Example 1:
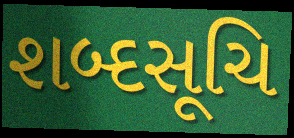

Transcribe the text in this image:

શબ્દસૂચિ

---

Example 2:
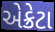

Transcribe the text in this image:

એક્રેટા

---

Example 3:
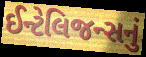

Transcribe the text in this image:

ઈન્ટેલિજન્સનું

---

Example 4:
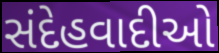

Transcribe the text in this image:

સંદેહવાદીઓ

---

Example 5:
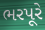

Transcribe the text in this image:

ભરપૂરે